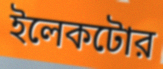
ইলেকটোর